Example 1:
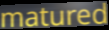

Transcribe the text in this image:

matured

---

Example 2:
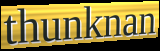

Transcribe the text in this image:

thunknan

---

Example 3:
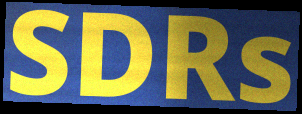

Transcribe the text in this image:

SDRs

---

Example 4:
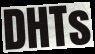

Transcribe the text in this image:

DHTs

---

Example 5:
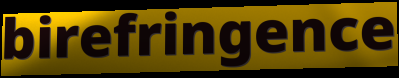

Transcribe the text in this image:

birefringence